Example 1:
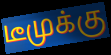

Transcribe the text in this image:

டீமுக்கு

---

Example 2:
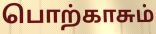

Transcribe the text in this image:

பொற்காசும்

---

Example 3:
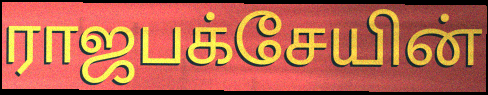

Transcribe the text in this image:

ராஜபக்சேயின்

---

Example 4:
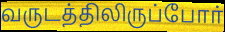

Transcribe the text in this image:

வருடத்திலிருப்போர்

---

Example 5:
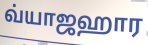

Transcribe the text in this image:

வ்யாஜஹார